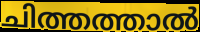
ചിത്തത്താൽ